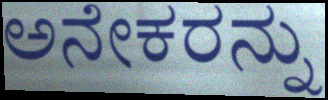
ಅನೇಕರನ್ನು